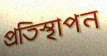
প্ৰতিস্থাপন